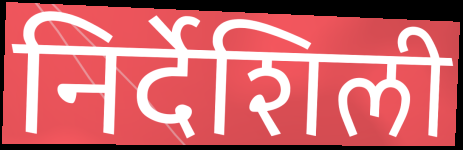
निर्देशिली